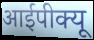
आईपीक्यू